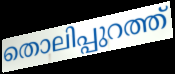
തൊലിപ്പുറത്ത്